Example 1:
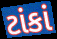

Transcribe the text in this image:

ટાંકાં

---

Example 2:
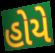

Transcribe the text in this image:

હોયે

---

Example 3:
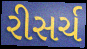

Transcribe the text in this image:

રીસર્ચ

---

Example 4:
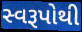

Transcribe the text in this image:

સ્વરૂપોથી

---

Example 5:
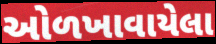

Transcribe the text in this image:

ઓળખાવાયેલા